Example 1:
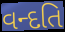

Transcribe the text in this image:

વન્દતિ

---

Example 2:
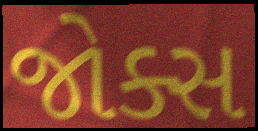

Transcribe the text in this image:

જોક્સ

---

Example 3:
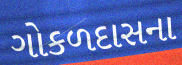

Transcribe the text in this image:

ગોકળદાસના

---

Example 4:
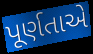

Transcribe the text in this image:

પૂર્ણતાએ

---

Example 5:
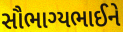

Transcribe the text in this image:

સૌભાગ્યભાઈને